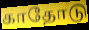
காதோடு